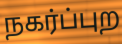
நகர்ப்புற